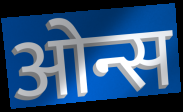
ओन्स